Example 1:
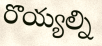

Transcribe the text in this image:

రొయ్యల్ని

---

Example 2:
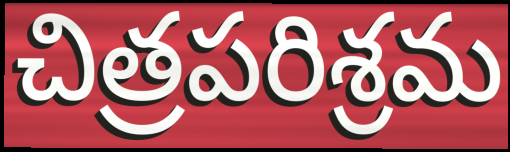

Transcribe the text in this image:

చిత్రపరిశ్రమ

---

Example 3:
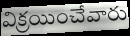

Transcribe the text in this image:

విక్రయించేవారు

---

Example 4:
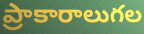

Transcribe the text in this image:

ప్రాకారాలుగల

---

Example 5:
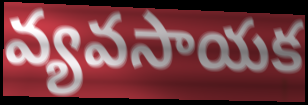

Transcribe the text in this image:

వ్యవసాయక